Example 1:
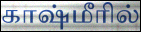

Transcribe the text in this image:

காஷ்மீரில்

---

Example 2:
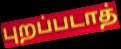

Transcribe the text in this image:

புறப்படாத்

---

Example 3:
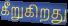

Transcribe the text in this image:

கீறுகிறது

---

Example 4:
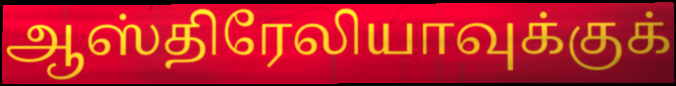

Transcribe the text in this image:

ஆஸ்திரேலியாவுக்குக்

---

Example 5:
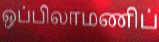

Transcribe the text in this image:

ஒப்பிலாமணிப்